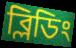
ব্লিডিং